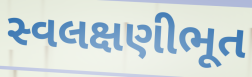
સ્વલક્ષણીભૂત